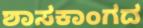
ಶಾಸಕಾಂಗದ